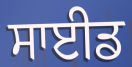
ਸਾਈਡ